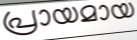
പ്രായമായ